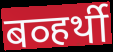
बव्हर्थी